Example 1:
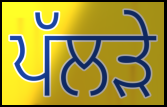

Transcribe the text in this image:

ਪੱਲੜੇ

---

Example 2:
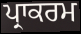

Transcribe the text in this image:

ਪ੍ਰਾਕਰਮ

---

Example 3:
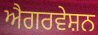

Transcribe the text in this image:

ਐਗਰਵੇਸ਼ਨ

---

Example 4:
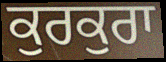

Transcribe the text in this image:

ਕੁਰਕੁਰਾ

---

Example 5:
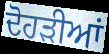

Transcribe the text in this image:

ਦੋਹੜੀਆਂ